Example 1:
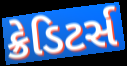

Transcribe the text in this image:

ક્રેડિટર્સ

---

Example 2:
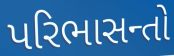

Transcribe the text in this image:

પરિભાસન્તો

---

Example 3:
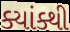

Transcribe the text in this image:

ક્યાંક્થી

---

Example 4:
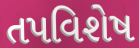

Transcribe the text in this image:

તપવિશેષ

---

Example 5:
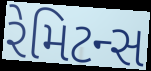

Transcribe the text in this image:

રેમિટન્સ